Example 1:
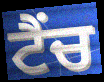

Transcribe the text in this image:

ਟੈਂਚ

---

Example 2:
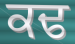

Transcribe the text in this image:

ਕਢ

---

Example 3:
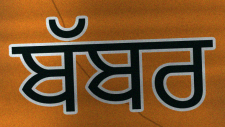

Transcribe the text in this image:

ਬੱਬਰ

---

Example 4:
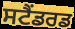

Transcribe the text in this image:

ਸਟੈਂਡਰਡ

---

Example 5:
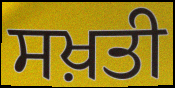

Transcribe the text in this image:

ਸਖ਼ਤੀ